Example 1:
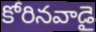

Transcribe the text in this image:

కోరినవాడై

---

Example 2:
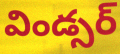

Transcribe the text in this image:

విండ్సర్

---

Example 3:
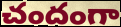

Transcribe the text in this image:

చందంగా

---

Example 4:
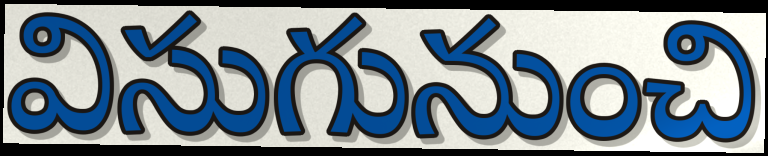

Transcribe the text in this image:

విసుగునుంచి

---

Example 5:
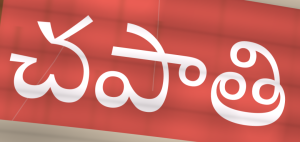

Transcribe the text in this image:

చపాతి